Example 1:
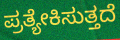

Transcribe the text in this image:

ಪ್ರತ್ಯೇಕಿಸುತ್ತದೆ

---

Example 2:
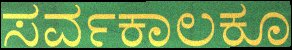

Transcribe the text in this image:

ಸರ್ವಕಾಲಕೂ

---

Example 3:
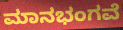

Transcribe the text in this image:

ಮಾನಭಂಗವೆ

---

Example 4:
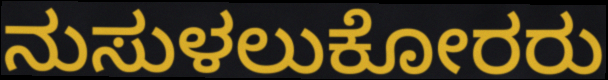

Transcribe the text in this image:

ನುಸುಳಲುಕೋರರು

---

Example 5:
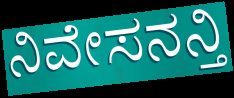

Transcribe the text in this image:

ನಿವೇಸನನ್ತಿ